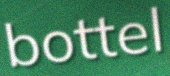
bottel